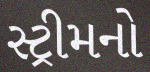
સ્ટ્રીમનો